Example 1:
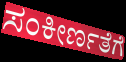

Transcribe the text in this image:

ಸಂಕೀರ್ಣತೆಗೆ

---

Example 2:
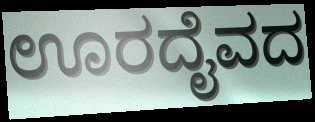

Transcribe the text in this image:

ಊರದೈವದ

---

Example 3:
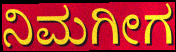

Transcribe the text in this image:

ನಿಮಗೀಗ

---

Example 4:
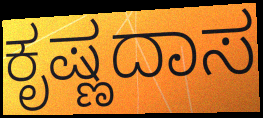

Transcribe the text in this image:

ಕೃಷ್ಣದಾಸ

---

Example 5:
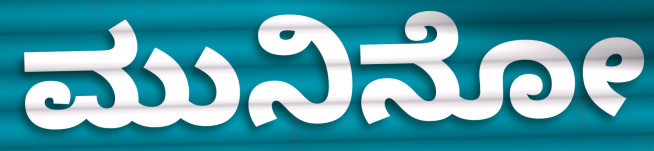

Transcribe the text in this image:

ಮುನಿನೋ